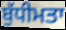
ਬੁੱਧੀਮਤਾ